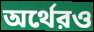
অর্থেরও